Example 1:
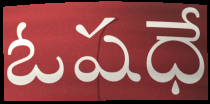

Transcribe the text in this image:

ఓషధే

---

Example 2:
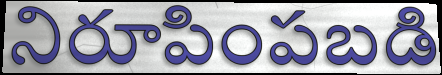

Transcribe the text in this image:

నిరూపింపబడి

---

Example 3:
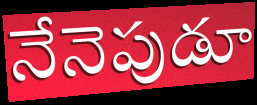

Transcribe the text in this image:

నేనెపుడూ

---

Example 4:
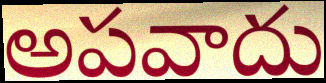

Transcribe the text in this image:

అపవాదు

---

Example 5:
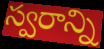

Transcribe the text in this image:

స్వరాన్ని